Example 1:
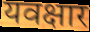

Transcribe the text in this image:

यवक्षार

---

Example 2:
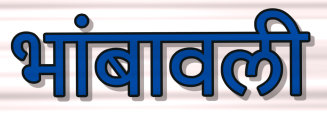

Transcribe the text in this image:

भांबावली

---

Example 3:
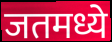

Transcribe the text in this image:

जतमध्ये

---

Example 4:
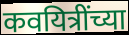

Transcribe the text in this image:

कवयित्रींच्या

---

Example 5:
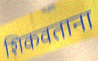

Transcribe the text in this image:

शिकवताना